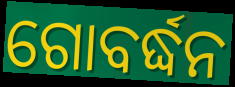
ଗୋବର୍ଦ୍ଧନ